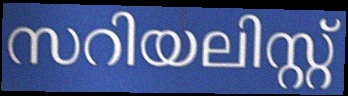
സറിയലിസ്റ്റ്